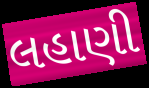
લહાણી